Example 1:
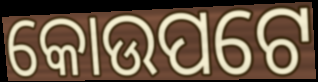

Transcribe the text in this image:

କୋଉପଟେ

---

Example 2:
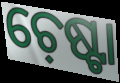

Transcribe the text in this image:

ଚ଼େଷ୍ଟା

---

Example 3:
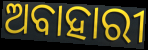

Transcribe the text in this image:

ଅବାହାରୀ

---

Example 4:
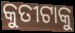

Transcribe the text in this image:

କୁତୀଟାକୁ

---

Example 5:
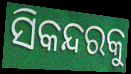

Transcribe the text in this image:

ସିକନ୍ଦରକୁ